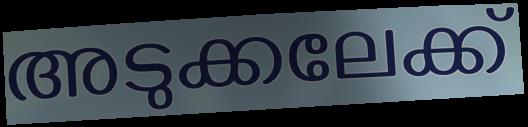
അടുക്കലേക്ക്